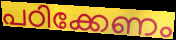
പഠിക്കേണം